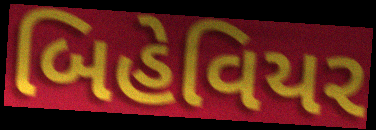
બિહેવિયર